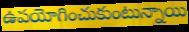
ఉపయోగించుకుంటున్నాయి